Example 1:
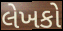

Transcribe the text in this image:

લેખકો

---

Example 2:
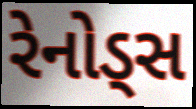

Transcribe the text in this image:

રેનોડ્સ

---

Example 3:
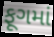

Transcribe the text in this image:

ફૂગમાં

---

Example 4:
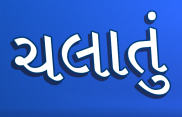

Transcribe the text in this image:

ચલાતું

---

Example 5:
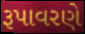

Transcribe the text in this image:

રૂપાવરણે